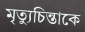
মৃত্যুচিন্তাকে